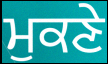
ਮੁਕਣੇ